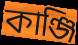
কাঞ্জি